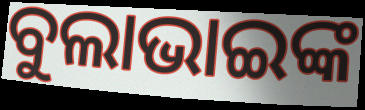
ବୁଲାଭାଇଙ୍କ